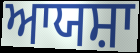
ਆਯਸ਼ਾ